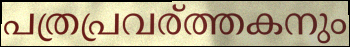
പത്രപ്രവര്ത്തകനും